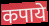
कपाये